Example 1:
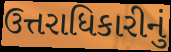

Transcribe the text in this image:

ઉત્તરાધિકારીનું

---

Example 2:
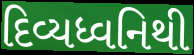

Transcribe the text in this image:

દિવ્યધ્વનિથી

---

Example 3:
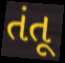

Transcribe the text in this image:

તંતૂ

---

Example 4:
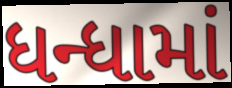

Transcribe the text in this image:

ધન્ધામાં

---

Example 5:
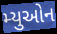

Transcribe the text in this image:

મ્યુઓન